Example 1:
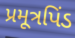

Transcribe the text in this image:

પ્રમૂત્રપિંડ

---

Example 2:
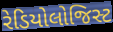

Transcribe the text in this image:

રેડિયોલોજિસ્ટ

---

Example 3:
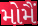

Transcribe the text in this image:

મોમૈં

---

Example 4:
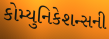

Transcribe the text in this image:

કોમ્યુનિકેશન્સની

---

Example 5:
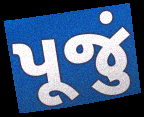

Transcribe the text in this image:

પૂજું